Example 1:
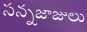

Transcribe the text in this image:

సన్నజాజులు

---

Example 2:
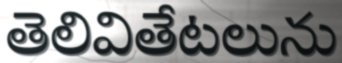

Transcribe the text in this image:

తెలివితేటలును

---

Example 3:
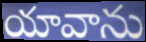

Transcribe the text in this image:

యావాను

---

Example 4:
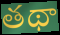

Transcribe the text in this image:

తథా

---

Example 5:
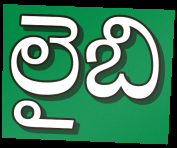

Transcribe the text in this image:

లైబి